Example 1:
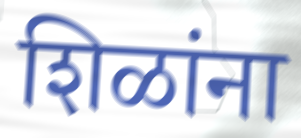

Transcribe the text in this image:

शिळांना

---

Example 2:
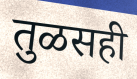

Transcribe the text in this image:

तुळसही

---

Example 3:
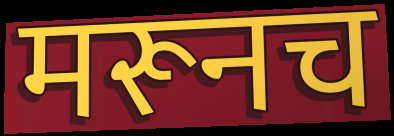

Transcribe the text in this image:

मरूनच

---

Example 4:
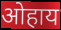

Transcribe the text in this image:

ओहाय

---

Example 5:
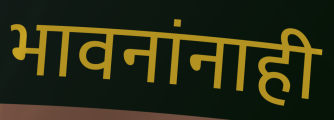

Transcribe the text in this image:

भावनांनाही